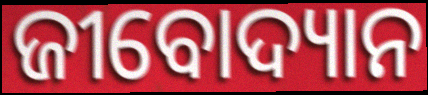
ଜୀବୋଦ୍ୟାନ